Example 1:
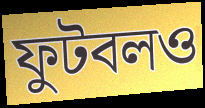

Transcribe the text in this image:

ফুটবলও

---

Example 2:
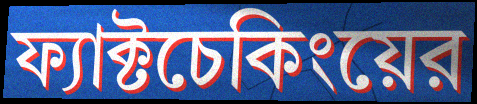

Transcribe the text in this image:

ফ্যাক্টচেকিংয়ের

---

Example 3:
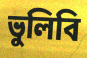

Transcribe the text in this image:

ভুলিবি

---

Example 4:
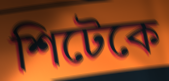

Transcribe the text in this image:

শিটেকে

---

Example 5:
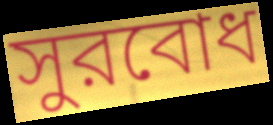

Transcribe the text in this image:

সুরবোধ